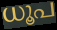
ധൂപ